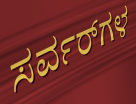
ಸರ್ವರ್‌ಗಳ